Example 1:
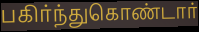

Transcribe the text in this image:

பகிர்ந்துகொண்டார்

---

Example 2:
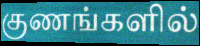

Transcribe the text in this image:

குணங்களில்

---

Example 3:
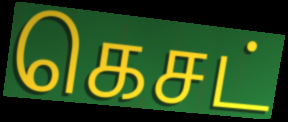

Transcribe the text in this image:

கெசட்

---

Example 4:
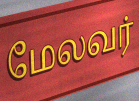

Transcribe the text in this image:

மேலவர்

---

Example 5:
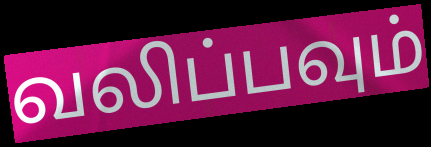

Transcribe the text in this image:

வலிப்பவும்